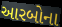
આરબોના